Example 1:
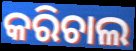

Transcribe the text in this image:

କରିଚାଲ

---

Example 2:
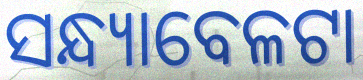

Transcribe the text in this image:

ସନ୍ଧ୍ୟାବେଳଟା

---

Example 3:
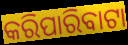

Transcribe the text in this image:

କରିପାରିବାଟା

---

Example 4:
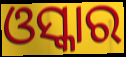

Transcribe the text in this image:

ଓସ୍କାର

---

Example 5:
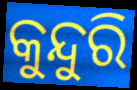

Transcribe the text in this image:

କୁନ୍ଦୁରି